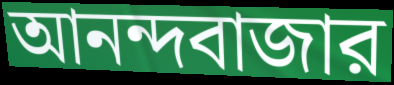
আনন্দবাজার